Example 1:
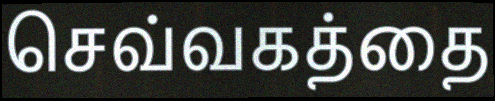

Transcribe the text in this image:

செவ்வகத்தை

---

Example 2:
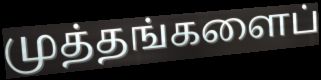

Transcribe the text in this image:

முத்தங்களைப்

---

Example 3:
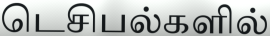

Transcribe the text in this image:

டெசிபல்களில்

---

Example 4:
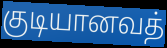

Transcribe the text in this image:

குடியானவத்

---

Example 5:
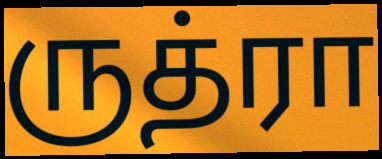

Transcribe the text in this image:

ருத்ரா